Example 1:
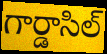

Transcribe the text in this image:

గార్డాసిల్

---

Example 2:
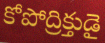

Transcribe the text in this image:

కోపోద్రిక్తుడై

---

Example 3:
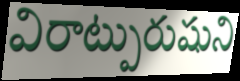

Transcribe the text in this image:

విరాట్పురుషుని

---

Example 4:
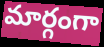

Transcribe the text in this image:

మార్గంగా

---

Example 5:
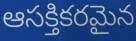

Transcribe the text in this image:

ఆసక్తికరమైన